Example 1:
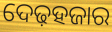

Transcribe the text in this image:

ଦେଢ଼ହଜାର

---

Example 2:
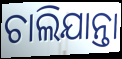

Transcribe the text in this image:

ଚାଲିଯାନ୍ତା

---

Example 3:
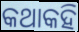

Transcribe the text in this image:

କଥାକହି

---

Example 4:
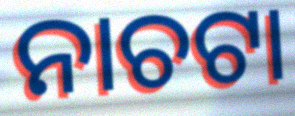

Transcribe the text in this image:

ନାଚଟା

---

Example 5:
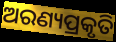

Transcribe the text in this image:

ଅରଣ୍ୟପ୍ରକୃତି